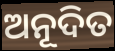
ଅନୂଦିତ